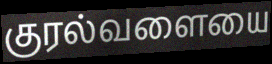
குரல்வளையை